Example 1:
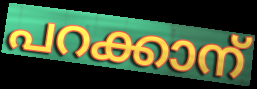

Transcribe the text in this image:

പറക്കാന്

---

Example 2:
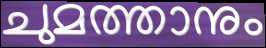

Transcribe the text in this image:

ചുമത്താനും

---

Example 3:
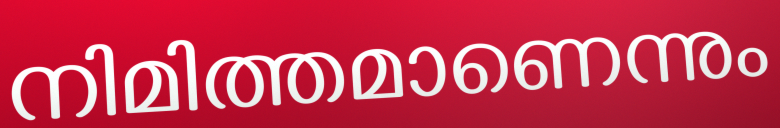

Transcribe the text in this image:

നിമിത്തമാണെന്നും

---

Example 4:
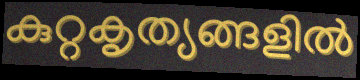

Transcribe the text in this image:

കുറ്റകൃത്യങ്ങളിൽ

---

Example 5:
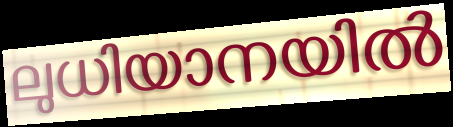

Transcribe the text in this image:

ലുധിയാനയിൽ